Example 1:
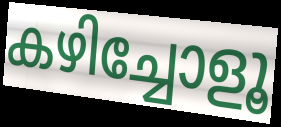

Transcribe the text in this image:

കഴിച്ചോളൂ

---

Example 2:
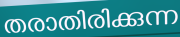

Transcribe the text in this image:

തരാതിരിക്കുന്ന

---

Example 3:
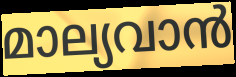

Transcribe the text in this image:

മാല്യവാൻ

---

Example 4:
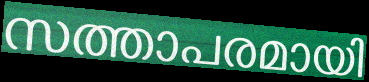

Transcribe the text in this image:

സത്താപരമായി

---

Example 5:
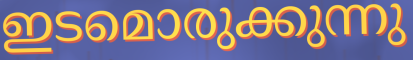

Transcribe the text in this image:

ഇടമൊരുക്കുന്നു